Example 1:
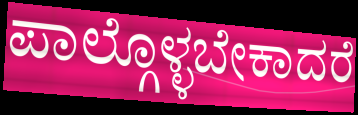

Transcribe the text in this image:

ಪಾಲ್ಗೊಳ್ಳಬೇಕಾದರೆ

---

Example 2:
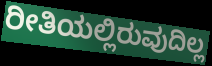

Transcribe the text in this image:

ರೀತಿಯಲ್ಲಿರುವುದಿಲ್ಲ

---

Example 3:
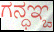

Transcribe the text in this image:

ಗನ್ಧಞ್ಚ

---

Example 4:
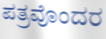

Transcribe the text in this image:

ಪತ್ರವೊಂದರ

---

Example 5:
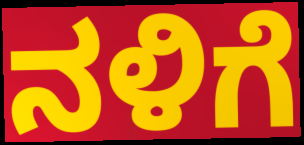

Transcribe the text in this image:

ನಳಿಗೆ